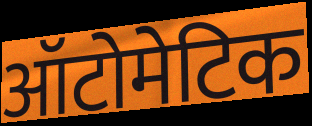
ऑटोमेटिक